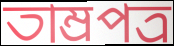
তাম্রপত্র